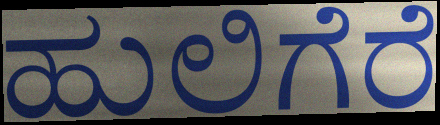
ಹುಲಿಗೆರೆ